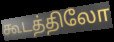
கூடத்திலோ